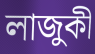
লাজুকী